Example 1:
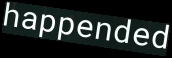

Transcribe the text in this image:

happended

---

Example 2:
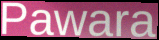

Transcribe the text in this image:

Pawara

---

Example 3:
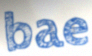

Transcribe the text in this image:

bae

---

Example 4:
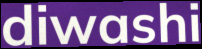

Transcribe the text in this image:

diwashi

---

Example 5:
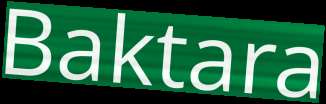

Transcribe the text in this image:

Baktara